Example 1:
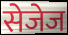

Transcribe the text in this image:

सेजेज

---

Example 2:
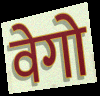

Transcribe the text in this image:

वेगो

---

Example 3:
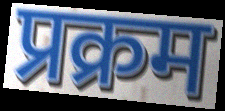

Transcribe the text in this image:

प्रक्रम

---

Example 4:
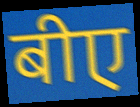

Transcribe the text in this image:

बीए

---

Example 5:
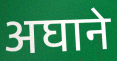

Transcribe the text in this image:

अघाने